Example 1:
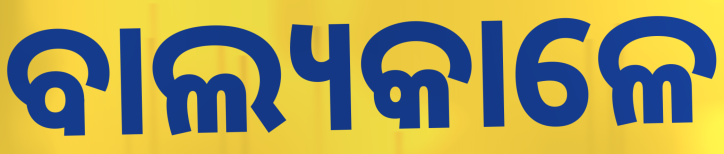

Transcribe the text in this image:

ବାଲ୍ୟକାଳେ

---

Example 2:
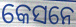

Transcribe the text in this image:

କେସନେ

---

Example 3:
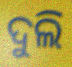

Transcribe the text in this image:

ଦୁଲି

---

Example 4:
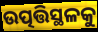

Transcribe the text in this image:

ଉତ୍ପତ୍ତିସ୍ଥଳକୁ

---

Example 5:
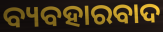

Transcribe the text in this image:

ବ୍ୟବହାରବାଦ